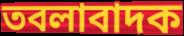
তবলাবাদক